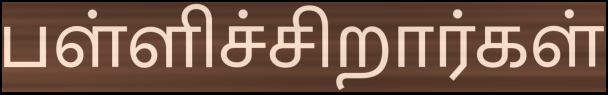
பள்ளிச்சிறார்கள்